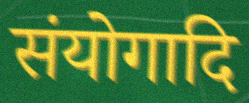
संयोगादि